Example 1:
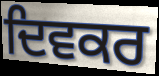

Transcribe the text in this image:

ਦਿਵਕਰ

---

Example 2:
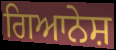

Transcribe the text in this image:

ਗਿਆਨੇਸ਼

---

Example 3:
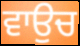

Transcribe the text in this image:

ਵਾਉਚ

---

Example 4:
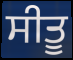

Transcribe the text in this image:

ਸੀਤੂ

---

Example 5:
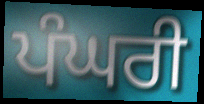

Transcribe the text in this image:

ਪੰਘਰੀ